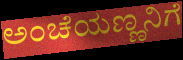
ಅಂಚೆಯಣ್ಣನಿಗೆ